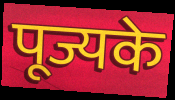
पूज्यके